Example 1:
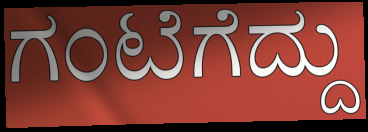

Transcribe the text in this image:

ಗಂಟೆಗೆದ್ದು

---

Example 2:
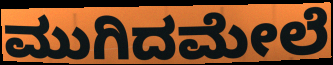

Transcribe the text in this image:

ಮುಗಿದಮೇಲೆ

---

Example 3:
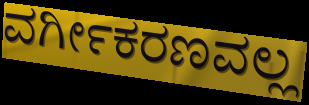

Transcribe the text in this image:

ವರ್ಗೀಕರಣವಲ್ಲ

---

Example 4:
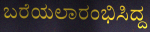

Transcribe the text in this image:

ಬರೆಯಲಾರಂಭಿಸಿದ್ದ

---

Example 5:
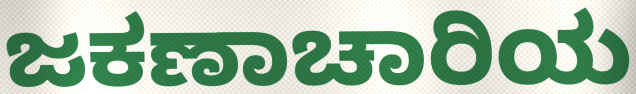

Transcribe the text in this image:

ಜಕಣಾಚಾರಿಯ